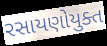
રસાયણોયુક્ત